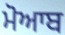
ਮੋਆਬ